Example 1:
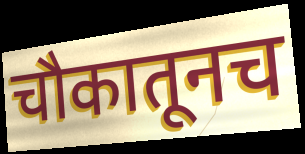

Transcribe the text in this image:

चौकातूनच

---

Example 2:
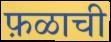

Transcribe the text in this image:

फ़ळाची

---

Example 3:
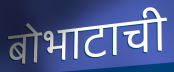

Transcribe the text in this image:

बोभाटाची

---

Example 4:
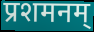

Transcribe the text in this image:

प्रशमनम्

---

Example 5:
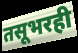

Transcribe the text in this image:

तसूभरही